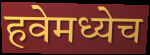
हवेमध्येच